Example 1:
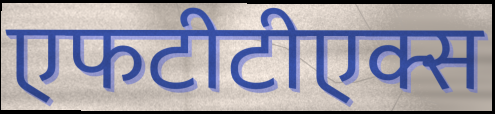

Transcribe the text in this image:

एफटीटीएक्स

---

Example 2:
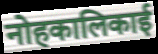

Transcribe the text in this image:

नोहकालिकाई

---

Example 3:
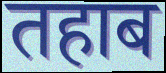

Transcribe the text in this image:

तहाब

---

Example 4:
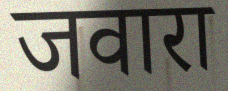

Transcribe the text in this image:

जवारा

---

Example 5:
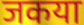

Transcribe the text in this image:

जकया